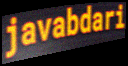
javabdari